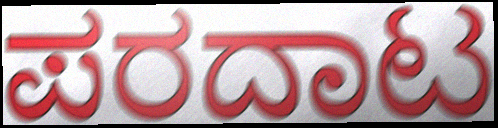
ಪರದಾಟ